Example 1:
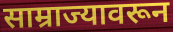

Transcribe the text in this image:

साम्राज्यावरून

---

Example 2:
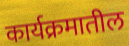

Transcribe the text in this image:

कार्यक्रमातील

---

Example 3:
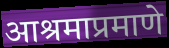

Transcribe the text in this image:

आश्रमाप्रमाणे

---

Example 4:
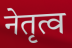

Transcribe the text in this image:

नेतृत्व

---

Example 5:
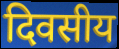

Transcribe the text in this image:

दिवसीय